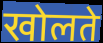
खोलते